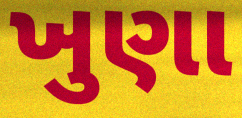
ખુણા